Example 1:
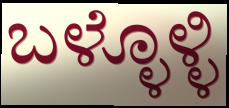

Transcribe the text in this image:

ಬಳ್ಳೊಳ್ಳಿ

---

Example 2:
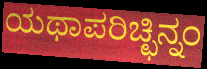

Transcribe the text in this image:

ಯಥಾಪರಿಚ್ಛಿನ್ನಂ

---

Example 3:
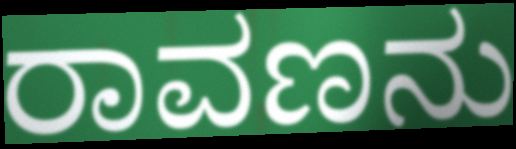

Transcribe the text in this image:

ರಾವಣನು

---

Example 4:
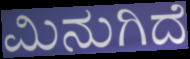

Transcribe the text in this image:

ಮಿನುಗಿದೆ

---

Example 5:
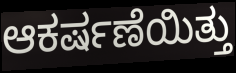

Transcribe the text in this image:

ಆಕರ್ಷಣೆಯಿತ್ತು